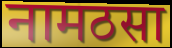
नामठसा